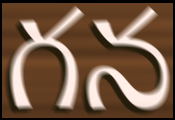
గన